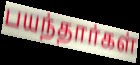
பயந்தார்கள்